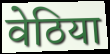
वेठिया